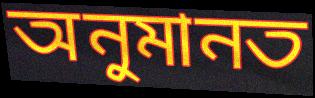
অনুমানত